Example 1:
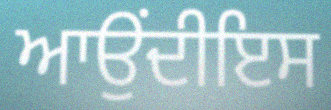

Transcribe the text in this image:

ਆਉਂਦੀਇਸ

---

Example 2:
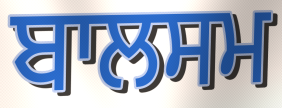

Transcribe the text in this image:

ਬਾਲਸਮ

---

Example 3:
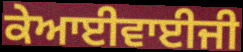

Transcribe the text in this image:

ਕੇਆਈਵਾਈਜੀ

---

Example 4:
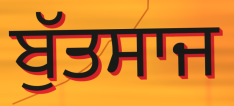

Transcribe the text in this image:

ਬੁੱਤਸਾਜ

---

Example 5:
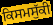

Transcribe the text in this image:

ਕਿਸਮਸੁੱਕੀ